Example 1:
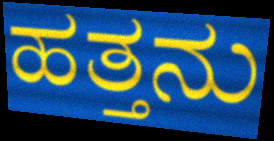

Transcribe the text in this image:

ಹತ್ತನು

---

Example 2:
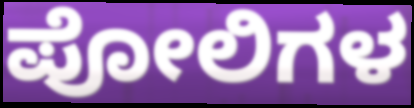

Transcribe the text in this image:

ಪೋಲಿಗಳ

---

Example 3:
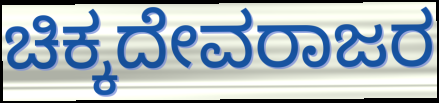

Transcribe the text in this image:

ಚಿಕ್ಕದೇವರಾಜರ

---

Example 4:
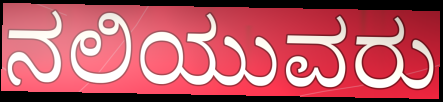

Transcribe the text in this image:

ನಲಿಯುವರು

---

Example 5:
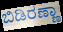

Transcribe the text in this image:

ಬಿಡಿರಣ್ಣಾ